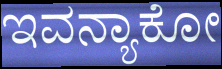
ಇವನ್ಯಾಕೋ